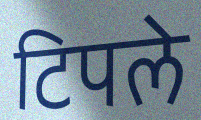
टिपले